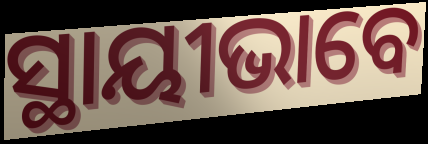
ସ୍ଥାୟୀଭାବେ